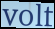
volt